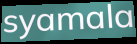
syamala